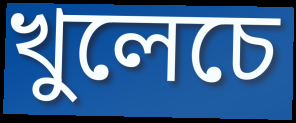
খুলেচে